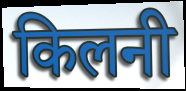
किलनी